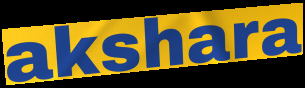
akshara